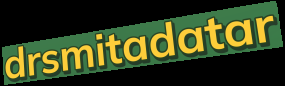
drsmitadatar